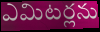
ఎమిటర్లను